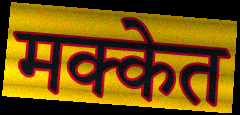
मक्केत